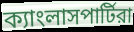
ক্যাংলাসপার্টিরা